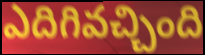
ఎదిగివచ్చింది